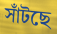
সাঁটছে